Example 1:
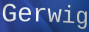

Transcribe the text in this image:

Gerwig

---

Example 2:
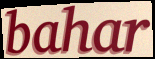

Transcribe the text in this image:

bahar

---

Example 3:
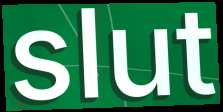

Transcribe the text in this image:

slut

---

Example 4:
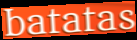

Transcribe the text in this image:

batatas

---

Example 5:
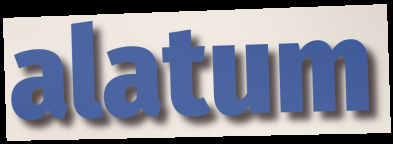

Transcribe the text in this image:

alatum